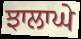
ਝਾਲਾਘੇ